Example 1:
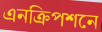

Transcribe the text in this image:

এনক্রিপশনে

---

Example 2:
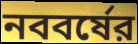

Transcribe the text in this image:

নববর্ষের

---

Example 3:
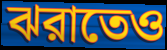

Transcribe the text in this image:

ঝরাতেও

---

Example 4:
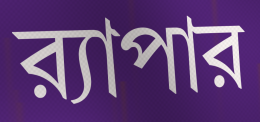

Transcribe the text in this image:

র‍্যাপার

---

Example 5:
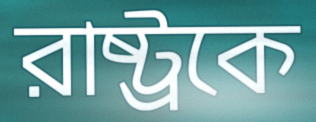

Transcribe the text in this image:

রাষ্ট্রকে